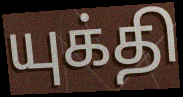
யுக்தி